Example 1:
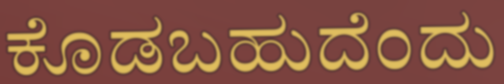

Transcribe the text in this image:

ಕೊಡಬಹುದೆಂದು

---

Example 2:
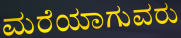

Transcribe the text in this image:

ಮರೆಯಾಗುವರು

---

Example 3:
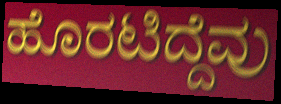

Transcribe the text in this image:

ಹೊರಟಿದ್ದೆವು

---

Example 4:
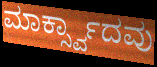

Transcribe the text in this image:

ಮಾರ್ಕ್ಸ್ವಾದವು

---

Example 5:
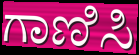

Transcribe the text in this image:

ಗಾಣಿಸಿ